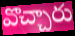
వొచ్చారు